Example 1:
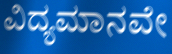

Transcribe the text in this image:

ವಿದ್ಯಮಾನವೇ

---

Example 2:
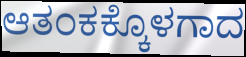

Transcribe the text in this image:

ಆತಂಕಕ್ಕೊಳಗಾದ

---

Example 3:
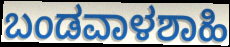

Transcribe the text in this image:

ಬಂಡವಾಳಶಾಹಿ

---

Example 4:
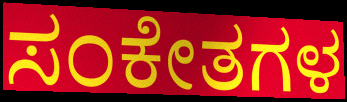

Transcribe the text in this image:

ಸಂಕೇತಗಳ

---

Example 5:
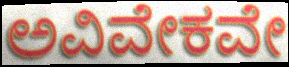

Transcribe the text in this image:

ಅವಿವೇಕವೇ